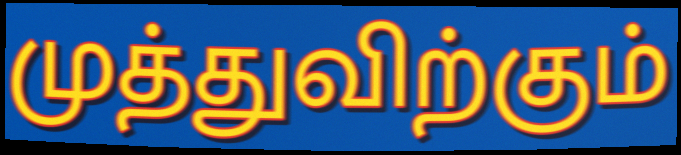
முத்துவிற்கும்